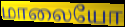
மாலையோ